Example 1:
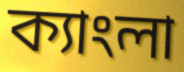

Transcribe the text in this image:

ক্যাংলা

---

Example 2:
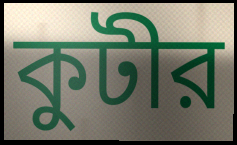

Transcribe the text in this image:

কুটীর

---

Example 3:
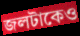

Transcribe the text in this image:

জলটাকেও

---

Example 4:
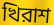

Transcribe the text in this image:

খিরাশ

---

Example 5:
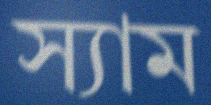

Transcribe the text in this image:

স্যাম